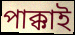
পাক্কাই